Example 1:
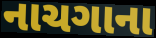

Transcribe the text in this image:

નાચગાના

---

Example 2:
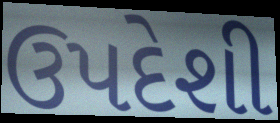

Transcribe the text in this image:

ઉપદેશી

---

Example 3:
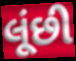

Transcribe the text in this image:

લૂંછી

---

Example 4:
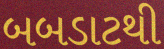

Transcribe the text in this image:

બબડાટથી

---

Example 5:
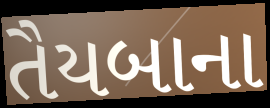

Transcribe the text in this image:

તૈયબાના